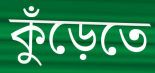
কুঁড়েতে